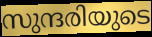
സുന്ദരിയുടെ